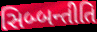
સિબ્બન્તીતિ